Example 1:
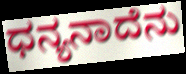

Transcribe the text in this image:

ಧನ್ಯನಾದೆನು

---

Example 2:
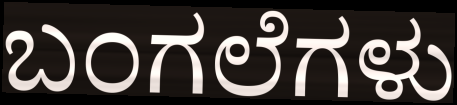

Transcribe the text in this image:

ಬಂಗಲೆಗಳು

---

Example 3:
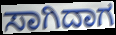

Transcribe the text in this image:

ಸಾಗಿದಾಗ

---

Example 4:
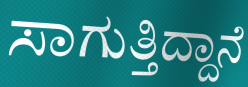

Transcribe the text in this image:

ಸಾಗುತ್ತಿದ್ದಾನೆ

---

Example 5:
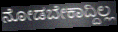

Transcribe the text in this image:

ನೋಡಬೇಕಾದ್ದಿಲ್ಲ